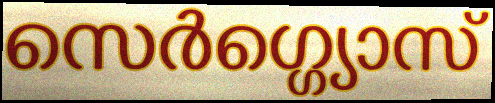
സെർഗ്ഗ്യൊസ്